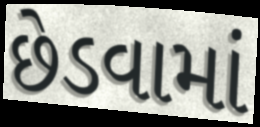
છેડવામાં